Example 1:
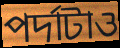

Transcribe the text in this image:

পর্দাটাও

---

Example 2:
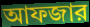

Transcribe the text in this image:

আফজার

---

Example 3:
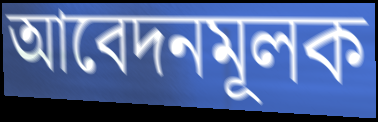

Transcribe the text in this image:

আবেদনমূলক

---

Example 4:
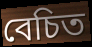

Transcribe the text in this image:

বেচিত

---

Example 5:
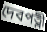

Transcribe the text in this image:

দেবপত্নী